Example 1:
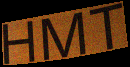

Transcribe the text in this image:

HMT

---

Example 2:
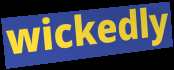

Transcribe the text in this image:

wickedly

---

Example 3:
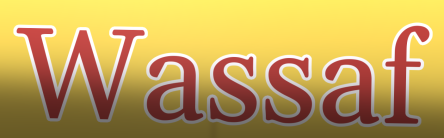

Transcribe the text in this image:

Wassaf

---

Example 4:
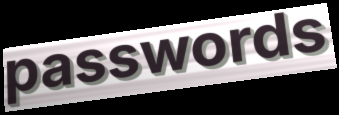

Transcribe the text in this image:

passwords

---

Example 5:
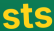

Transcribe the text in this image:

sts